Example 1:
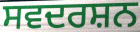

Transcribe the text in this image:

ਸਵਦਰਸ਼ਨ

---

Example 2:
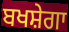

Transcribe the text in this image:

ਬਖਸ਼ੇਗਾ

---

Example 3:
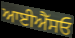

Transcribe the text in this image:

ਆਈਐੱਸਓ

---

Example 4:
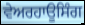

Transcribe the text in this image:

ਵੇਅਰਹਾਊਸਿੰਗ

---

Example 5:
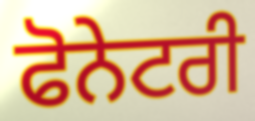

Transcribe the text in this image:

ਫੋਨੇਟਰੀ